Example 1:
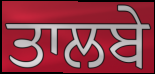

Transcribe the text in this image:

ਤਾਲਬੇ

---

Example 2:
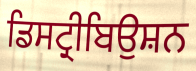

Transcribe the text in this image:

ਡਿਸਟ੍ਰੀਬਿਉਸ਼ਨ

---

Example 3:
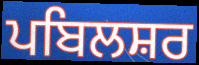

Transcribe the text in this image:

ਪਬਿਲਸ਼ਰ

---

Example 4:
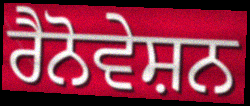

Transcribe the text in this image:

ਰੈਨੋਵੇਸ਼ਨ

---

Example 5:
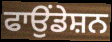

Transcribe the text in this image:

ਫਾਉਂਡੇਸ਼ਨ